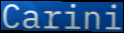
Carini